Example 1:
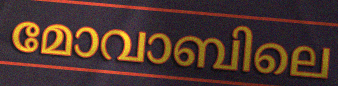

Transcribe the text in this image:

മോവാബിലെ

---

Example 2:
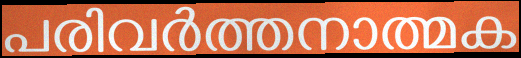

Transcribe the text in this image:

പരിവർത്തനാത്മക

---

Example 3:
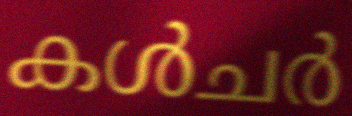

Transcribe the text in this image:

കൾചർ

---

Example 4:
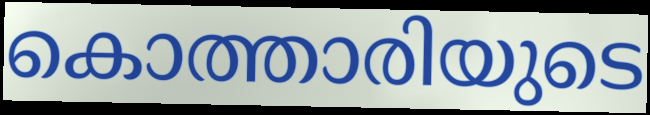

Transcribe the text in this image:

കൊത്താരിയുടെ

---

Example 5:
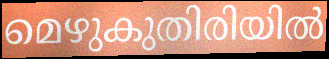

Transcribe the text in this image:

മെഴുകുതിരിയിൽ